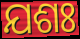
ଯଶଃ